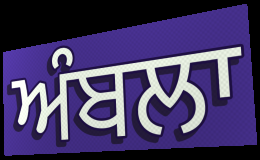
ਅੰਬਲਾ